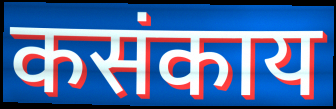
कसंकाय